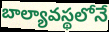
బాల్యావస్థలోనే